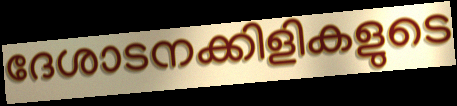
ദേശാടനക്കിളികളുടെ